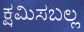
ಕ್ಷಮಿಸಬಲ್ಲ